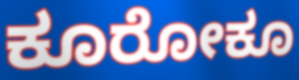
ಕೂರೋಕೂ